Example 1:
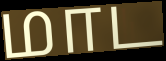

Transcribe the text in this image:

மாட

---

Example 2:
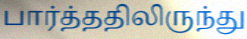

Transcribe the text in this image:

பார்த்ததிலிருந்து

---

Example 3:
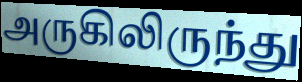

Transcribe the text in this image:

அருகிலிருந்து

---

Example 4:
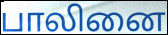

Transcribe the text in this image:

பாலினை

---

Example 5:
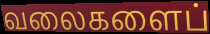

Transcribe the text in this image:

வலைகளைப்